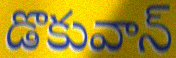
డొకువాన్